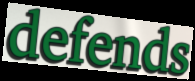
defends